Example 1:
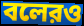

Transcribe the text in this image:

বলেরও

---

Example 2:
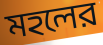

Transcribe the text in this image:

মহলের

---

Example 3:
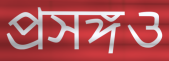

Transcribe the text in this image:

প্রসঙ্গও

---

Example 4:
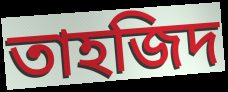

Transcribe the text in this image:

তাহজিদ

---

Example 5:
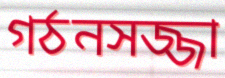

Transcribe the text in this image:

গঠনসজ্জা